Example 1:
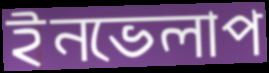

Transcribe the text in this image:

ইনভেলাপ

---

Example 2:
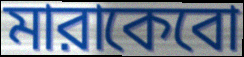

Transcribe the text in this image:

মারাকেবো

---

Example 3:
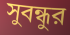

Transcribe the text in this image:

সুবন্ধুর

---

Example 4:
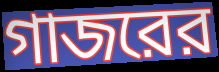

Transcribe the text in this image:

গাজরের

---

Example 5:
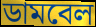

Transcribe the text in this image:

ডামবেল